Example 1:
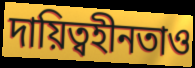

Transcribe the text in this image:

দায়িত্বহীনতাও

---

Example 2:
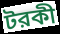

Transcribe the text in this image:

টরকী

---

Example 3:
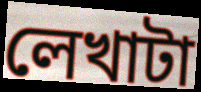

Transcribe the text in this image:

লেখাটা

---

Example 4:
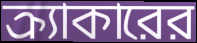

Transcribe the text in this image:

ক্র্যাকারের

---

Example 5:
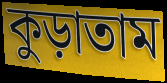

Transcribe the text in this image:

কুড়াতাম